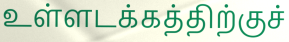
உள்ளடக்கத்திற்குச்